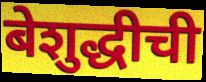
बेशुद्धीची